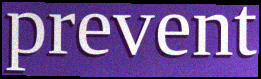
prevent